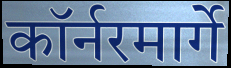
कॉर्नरमार्गे